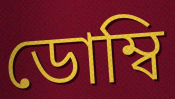
ডোম্বি